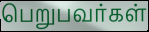
பெறுபவர்கள்